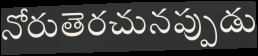
నోరుతెరచునప్పుడు